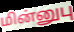
மின்னுபு